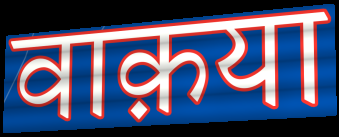
वाक़या